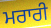
ਮਰਾਰੀ